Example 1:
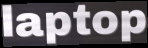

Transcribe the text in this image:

laptop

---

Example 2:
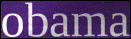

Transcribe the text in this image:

obama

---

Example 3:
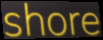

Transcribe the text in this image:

shore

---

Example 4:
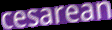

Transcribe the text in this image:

cesarean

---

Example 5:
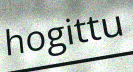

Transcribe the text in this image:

hogittu